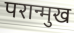
परान्मुख